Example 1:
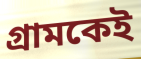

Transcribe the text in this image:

গ্রামকেই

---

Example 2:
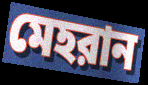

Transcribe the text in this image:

মেহরান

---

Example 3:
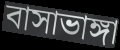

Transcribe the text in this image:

বাসাভাঙ্গা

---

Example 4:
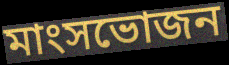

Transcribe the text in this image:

মাংসভোজন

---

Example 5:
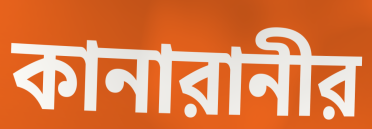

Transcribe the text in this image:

কানারানীর